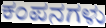
ಕಂಪನಗಳು